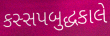
કસ્સપબુદ્ધકાલે